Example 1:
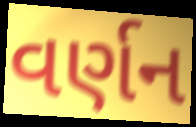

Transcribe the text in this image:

વર્ણન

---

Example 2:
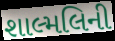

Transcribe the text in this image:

શાલ્મલિની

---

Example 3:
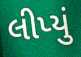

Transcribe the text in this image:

લીપ્યું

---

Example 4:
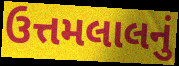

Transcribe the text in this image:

ઉત્તમલાલનું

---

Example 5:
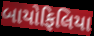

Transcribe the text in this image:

બાયોફિલિયા